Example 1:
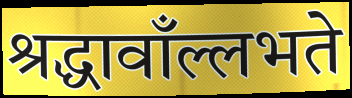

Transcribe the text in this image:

श्रद्धावाँल्लभते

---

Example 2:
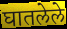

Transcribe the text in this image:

घातलेले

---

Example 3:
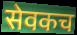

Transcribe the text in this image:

सेवकच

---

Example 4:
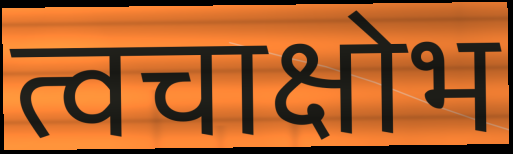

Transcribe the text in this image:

त्वचाक्षोभ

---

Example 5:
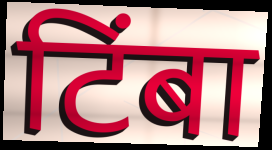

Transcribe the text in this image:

टिंबा